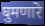
घुमणारे